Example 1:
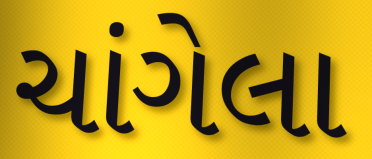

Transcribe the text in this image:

ચાંગેલા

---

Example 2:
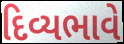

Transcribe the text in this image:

દિવ્યભાવે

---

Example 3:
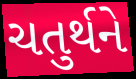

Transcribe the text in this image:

ચતુર્થને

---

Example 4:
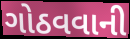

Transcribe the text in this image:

ગોઠવવાની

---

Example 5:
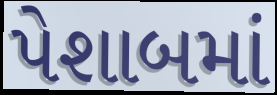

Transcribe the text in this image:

પેશાબમાં